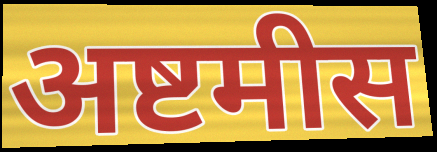
अष्टमीस